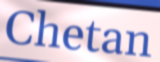
Chetan